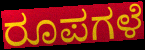
ರೂಪಗಳೆ